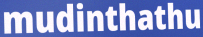
mudinthathu